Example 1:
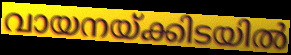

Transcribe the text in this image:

വായനയ്ക്കിടയിൽ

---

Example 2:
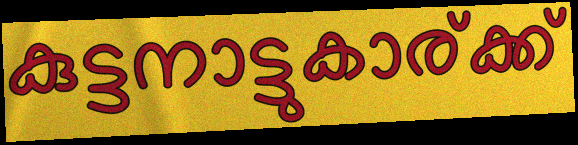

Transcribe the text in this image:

കുട്ടനാട്ടുകാര്ക്ക്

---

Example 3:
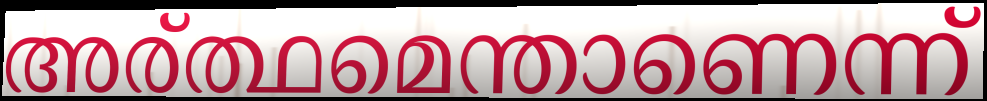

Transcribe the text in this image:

അര്ത്ഥമെന്താണെന്ന്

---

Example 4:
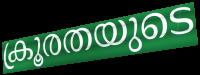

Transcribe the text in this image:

ക്രൂരതയുടെ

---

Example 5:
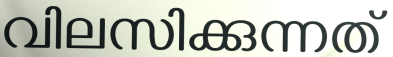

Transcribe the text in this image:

വിലസിക്കുന്നത്